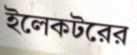
ইলেকটরের